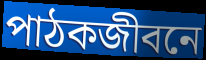
পাঠকজীবনে